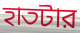
হাতটার